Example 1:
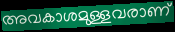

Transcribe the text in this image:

അവകാശമുള്ളവരാണ്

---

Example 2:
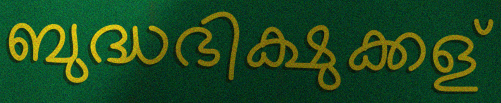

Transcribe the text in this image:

ബുദ്ധഭിക്ഷുക്കള്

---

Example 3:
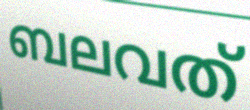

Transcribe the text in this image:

ബലവത്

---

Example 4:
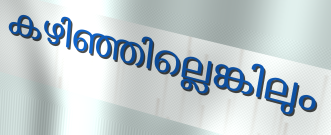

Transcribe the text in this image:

കഴിഞ്ഞില്ലെങ്കിലും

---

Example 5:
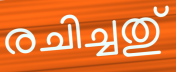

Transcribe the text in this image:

രചിച്ചതു്